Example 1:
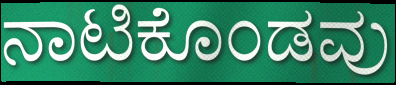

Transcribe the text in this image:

ನಾಟಿಕೊಂಡವು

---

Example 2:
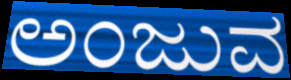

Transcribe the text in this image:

ಅಂಜುವ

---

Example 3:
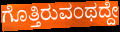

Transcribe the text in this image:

ಗೊತ್ತಿರುವಂಥದ್ದೇ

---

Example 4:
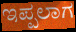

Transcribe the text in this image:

ಇಪ್ಪಲಾಗ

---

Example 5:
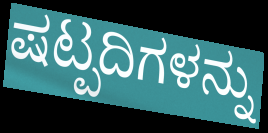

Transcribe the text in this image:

ಷಟ್ಪದಿಗಳನ್ನು